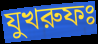
যুখরুফঃ